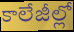
కాలేజీల్లో